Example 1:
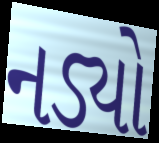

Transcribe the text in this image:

નડ્યો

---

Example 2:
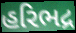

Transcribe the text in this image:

હરિભદ્ર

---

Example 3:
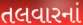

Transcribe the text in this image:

તલવારનાં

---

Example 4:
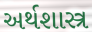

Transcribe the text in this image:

અર્થશાસ્ત્ર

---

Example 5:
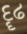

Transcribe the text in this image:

દૄઢ